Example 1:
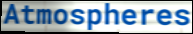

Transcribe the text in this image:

Atmospheres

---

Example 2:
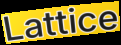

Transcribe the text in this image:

Lattice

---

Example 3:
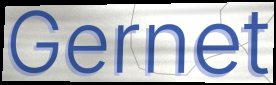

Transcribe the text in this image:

Gernet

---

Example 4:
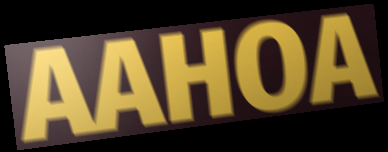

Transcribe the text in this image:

AAHOA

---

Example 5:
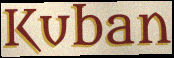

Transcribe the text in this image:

Kuban